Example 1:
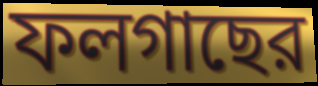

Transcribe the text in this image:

ফলগাছের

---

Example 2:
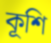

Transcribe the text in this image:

কূশি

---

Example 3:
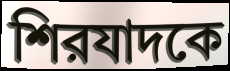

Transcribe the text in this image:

শিরযাদকে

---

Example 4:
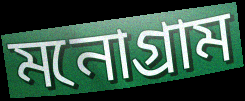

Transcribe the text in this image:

মনোগ্রাম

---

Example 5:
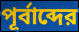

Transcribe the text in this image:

পূর্বাব্দের